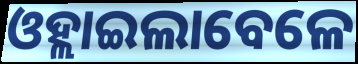
ଓହ୍ଲାଇଲାବେଳେ